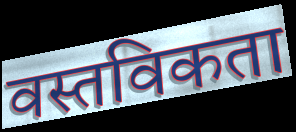
वस्तविकता